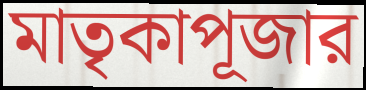
মাতৃকাপূজার